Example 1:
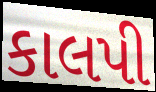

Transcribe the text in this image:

કાલપી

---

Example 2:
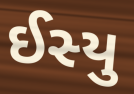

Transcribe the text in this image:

ઈસ્યુ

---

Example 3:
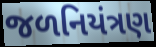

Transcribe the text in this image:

જળનિયંત્રણ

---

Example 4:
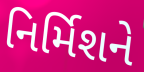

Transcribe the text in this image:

નિર્મિશને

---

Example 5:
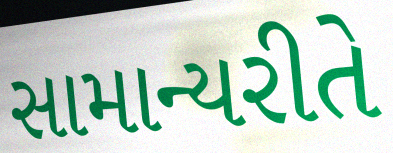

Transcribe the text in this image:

સામાન્યરીતે